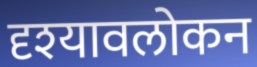
दृश्‍यावलोकन